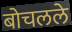
बोचलले